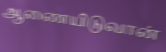
ஆணையிடுவான்